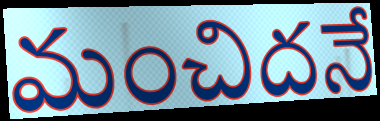
మంచిదనే